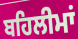
ਬਹਿਲੀਮਾਂ